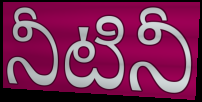
నీటినీ